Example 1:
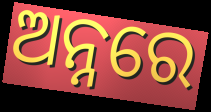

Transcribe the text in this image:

ଅନ୍ନରେ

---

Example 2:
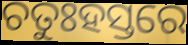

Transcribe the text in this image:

ଚତୁଃହସ୍ତରେ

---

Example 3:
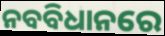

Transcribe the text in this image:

ନବବିଧାନରେ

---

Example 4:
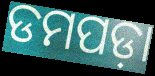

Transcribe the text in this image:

ଡମପଡ଼ା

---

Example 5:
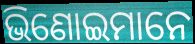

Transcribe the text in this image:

ଭିଣୋଇମାନେ